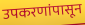
उपकरणांपासून